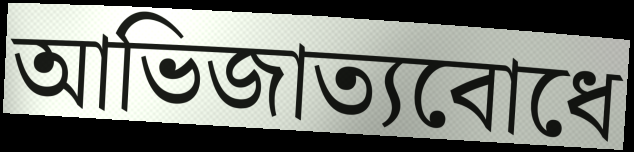
আভিজাত্যবোধে